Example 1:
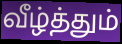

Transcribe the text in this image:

வீழ்த்தும்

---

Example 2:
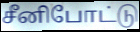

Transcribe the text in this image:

சீனிபோட்டு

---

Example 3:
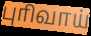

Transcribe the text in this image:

புரிவாய்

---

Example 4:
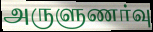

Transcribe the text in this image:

அருளுணர்வு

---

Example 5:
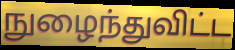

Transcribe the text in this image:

நுழைந்துவிட்ட